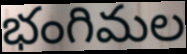
భంగిమల